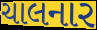
ચાલનાર